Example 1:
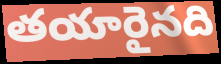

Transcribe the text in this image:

తయారైనది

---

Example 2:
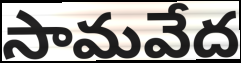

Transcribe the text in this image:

సామవేద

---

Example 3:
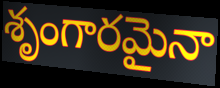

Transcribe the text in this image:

శృంగారమైనా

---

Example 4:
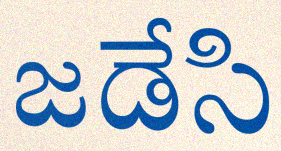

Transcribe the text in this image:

జడేసి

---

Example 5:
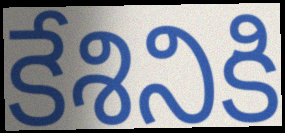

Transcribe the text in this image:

కేశినికి